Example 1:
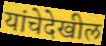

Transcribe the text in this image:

यांचेदेखील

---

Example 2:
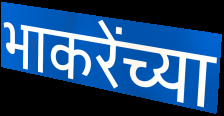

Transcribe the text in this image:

भाकरेंच्या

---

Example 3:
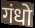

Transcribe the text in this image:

गंधो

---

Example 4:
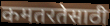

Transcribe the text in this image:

कमतरतेसाठी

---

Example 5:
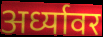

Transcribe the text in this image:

अर्ध्यावर